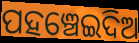
ପହଞ୍ଚେଇଦିଅ